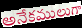
అనేకములుగా